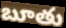
బూతు